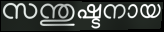
സന്തുഷ്ടനായ